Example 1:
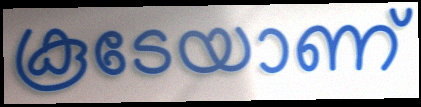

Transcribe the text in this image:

കൂടേയാണ്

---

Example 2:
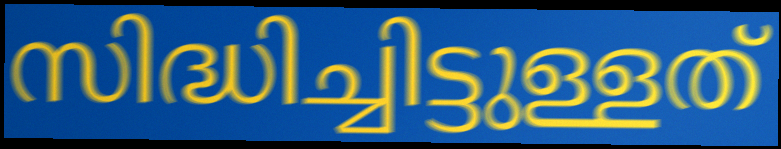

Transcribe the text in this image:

സിദ്ധിച്ചിട്ടുള്ളത്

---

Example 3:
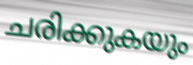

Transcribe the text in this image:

ചരിക്കുകയും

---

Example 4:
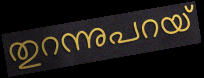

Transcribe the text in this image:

തുറന്നുപറയ്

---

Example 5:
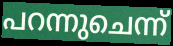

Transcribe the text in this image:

പറന്നുചെന്ന്